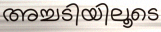
അച്ചടിയിലൂടെ